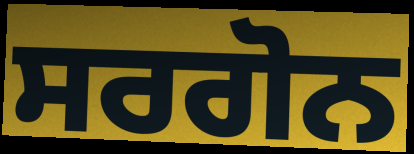
ਸਰਗੋਨ